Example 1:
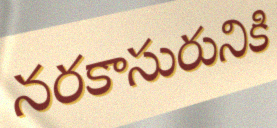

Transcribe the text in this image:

నరకాసురునికి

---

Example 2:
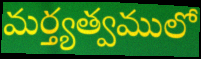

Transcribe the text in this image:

మర్త్యత్వములో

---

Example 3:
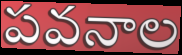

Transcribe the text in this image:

పవనాల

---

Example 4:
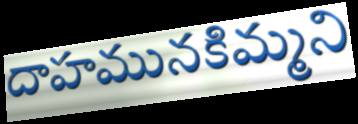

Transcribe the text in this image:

దాహమునకిమ్మని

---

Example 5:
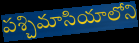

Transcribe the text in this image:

పశ్చిమాసియాలోని